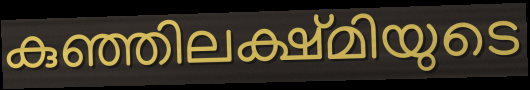
കുഞ്ഞിലക്ഷ്മിയുടെ